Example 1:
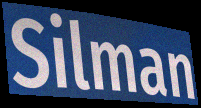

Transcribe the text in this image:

Silman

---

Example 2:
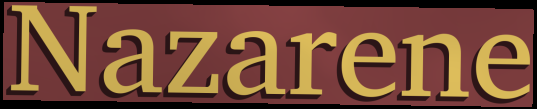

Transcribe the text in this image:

Nazarene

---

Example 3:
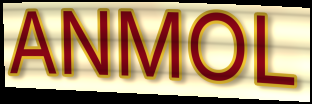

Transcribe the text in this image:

ANMOL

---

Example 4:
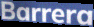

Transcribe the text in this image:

Barrera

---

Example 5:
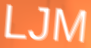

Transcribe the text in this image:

LJM